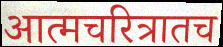
आत्मचरित्रातच